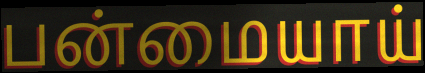
பன்மையாய்